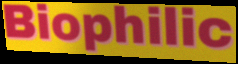
Biophilic